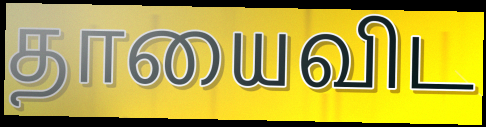
தாயைவிட